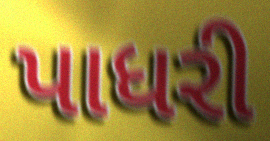
પાધરી